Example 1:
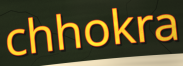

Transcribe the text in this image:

chhokra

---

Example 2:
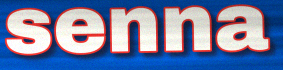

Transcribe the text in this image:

senna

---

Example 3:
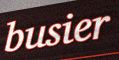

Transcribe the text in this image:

busier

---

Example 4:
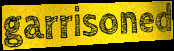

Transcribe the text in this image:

garrisoned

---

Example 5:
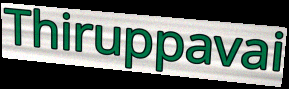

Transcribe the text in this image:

Thiruppavai